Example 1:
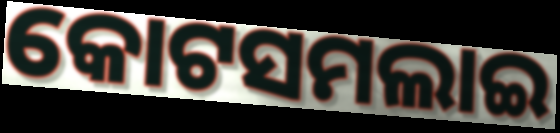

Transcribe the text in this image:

କୋଟସମଲାଇ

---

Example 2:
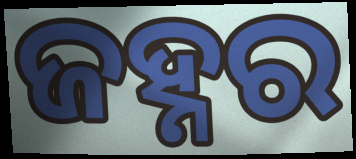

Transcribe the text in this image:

ଜହ୍ନର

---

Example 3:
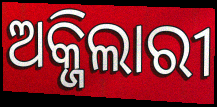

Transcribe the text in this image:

ଅକ୍ଜିଲାରୀ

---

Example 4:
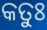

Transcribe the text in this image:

କତୁଃ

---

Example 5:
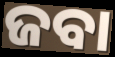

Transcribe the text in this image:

ଜବା